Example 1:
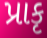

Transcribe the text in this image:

પ્રાકૃ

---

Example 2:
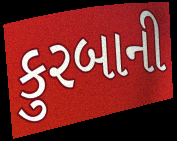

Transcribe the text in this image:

કુરબાની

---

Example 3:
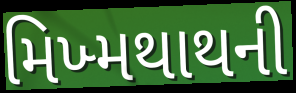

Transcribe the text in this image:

મિખ્મથાથની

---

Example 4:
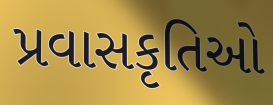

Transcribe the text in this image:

પ્રવાસકૃતિઓ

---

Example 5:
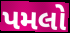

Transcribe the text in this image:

પમલો